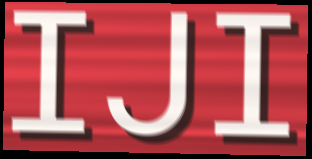
IJI